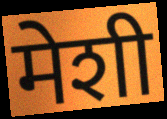
मेशी